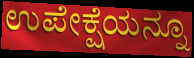
ಉಪೇಕ್ಷೆಯನ್ನೂ